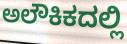
ಅಲೌಕಿಕದಲ್ಲಿ